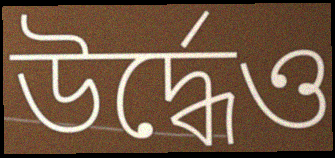
উর্দ্ধেও